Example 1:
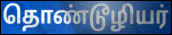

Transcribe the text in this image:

தொண்டூழியர்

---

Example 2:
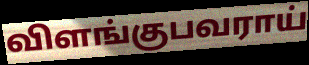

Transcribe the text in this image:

விளங்குபவராய்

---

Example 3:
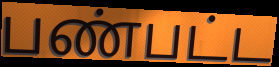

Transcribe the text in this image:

பண்பட்ட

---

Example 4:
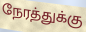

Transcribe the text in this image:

நேரத்துக்கு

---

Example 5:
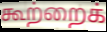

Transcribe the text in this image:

கூற்றைக்